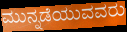
ಮುನ್ನಡೆಯುವವರು